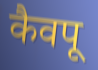
कैवपू